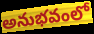
అనుభవంలో